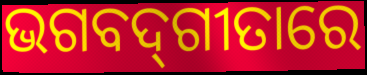
ଭଗବଦ୍‌ଗୀତାରେ